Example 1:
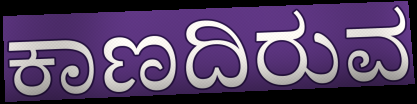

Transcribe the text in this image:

ಕಾಣದಿರುವ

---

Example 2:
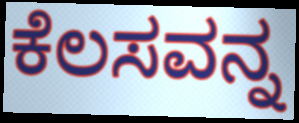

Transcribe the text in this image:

ಕೆಲಸವನ್ನ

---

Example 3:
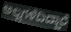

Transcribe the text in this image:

ಅಲ್ಲಗಳೆದಿದ್ದಾರೆ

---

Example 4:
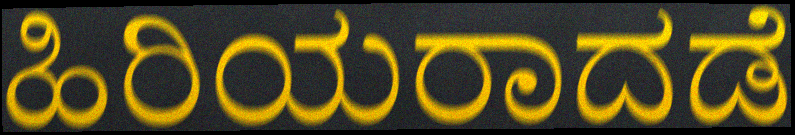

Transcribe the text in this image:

ಹಿರಿಯರಾದಡೆ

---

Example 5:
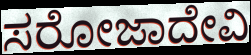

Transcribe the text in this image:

ಸರೋಜಾದೇವಿ